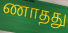
ணாதது